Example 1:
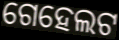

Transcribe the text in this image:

ଗେହେଲଟ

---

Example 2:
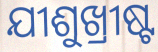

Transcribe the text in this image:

ଯୀଶୁଖ୍ରୀଷ୍ଟ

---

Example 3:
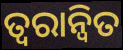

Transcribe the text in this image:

ତ୍ଵରାନ୍ବିତ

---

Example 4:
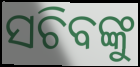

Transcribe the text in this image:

ସଚିବଙ୍କୁ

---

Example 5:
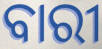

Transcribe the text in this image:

ବାରୀ